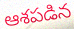
ఆశపడిన